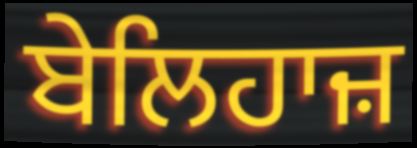
ਬੇਲਿਹਾਜ਼